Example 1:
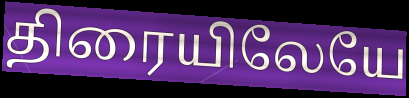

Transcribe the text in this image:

திரையிலேயே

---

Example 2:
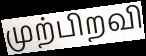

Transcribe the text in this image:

முற்பிறவி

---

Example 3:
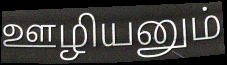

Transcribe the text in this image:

ஊழியனும்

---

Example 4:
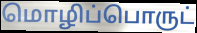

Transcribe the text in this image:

மொழிப்பொருட்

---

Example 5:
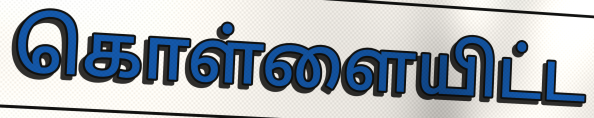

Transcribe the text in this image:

கொள்ளையிட்ட